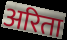
अरिता